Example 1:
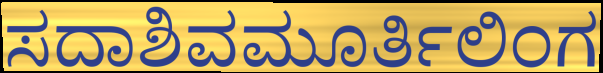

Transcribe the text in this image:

ಸದಾಶಿವಮೂರ್ತಿಲಿಂಗ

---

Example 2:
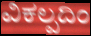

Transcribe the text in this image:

ವಿಕಲ್ಪದಿಂ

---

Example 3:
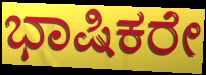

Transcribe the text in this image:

ಭಾಷಿಕರೇ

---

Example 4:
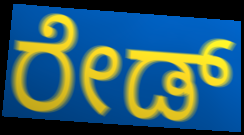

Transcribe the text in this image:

ರೇಡ್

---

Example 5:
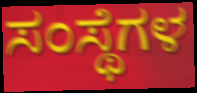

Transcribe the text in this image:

ಸಂಸ್ಥೆಗಳ